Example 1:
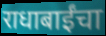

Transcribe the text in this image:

राधाबाईंचा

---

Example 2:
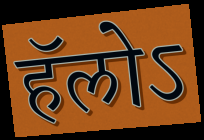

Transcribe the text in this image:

हॅलोऽ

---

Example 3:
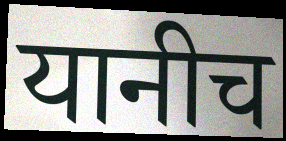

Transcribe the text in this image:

यानीच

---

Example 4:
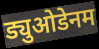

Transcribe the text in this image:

ड्युओडेनम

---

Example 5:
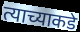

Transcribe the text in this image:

त्याच्याकडे